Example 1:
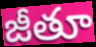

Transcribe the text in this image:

జీతూ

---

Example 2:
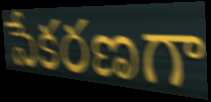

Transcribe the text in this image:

సేకరణగా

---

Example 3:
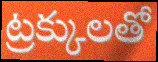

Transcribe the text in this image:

ట్రక్కులతో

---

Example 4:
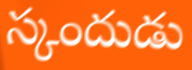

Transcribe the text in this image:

స్కందుడు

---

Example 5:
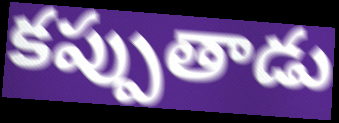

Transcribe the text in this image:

కప్పుతాడు